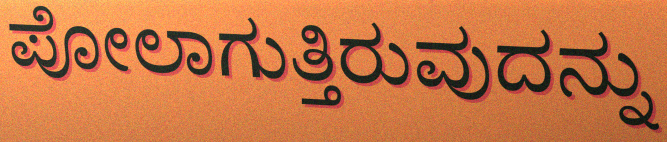
ಪೋಲಾಗುತ್ತಿರುವುದನ್ನು